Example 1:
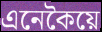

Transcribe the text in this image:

এনেকৈয়ে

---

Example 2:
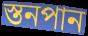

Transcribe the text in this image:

স্তনপান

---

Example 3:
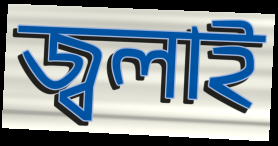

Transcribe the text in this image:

জ্বলাই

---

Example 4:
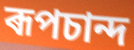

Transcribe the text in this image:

ৰূপচান্দ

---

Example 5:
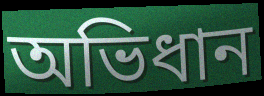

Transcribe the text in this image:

অভিধান